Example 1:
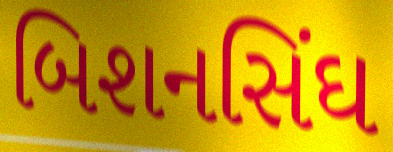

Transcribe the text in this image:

બિશનસિંઘ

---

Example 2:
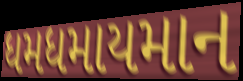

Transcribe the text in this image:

ધમધમાયમાન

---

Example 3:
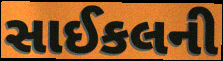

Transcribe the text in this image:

સાઈકલની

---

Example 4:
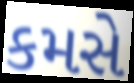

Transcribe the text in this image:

કમસે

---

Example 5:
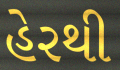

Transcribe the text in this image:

હેરથી